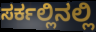
ಸರ್ಕಲ್ಲಿನಲ್ಲಿ